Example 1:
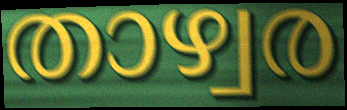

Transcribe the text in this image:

താഴ്വര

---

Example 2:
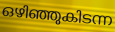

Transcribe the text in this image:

ഒഴിഞ്ഞുകിടന്ന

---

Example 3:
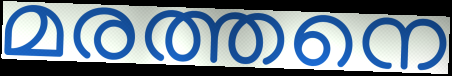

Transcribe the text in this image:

മരത്തനെ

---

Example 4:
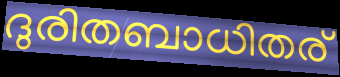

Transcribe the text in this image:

ദുരിതബാധിതര്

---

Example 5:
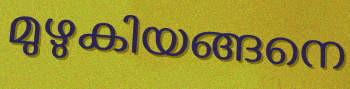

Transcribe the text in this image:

മുഴുകിയങ്ങനെ